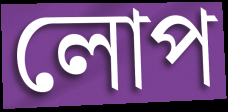
লোপ